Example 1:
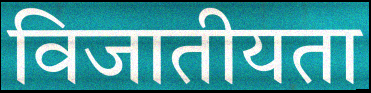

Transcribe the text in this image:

विजातीयता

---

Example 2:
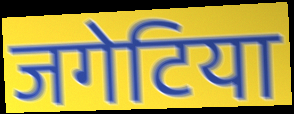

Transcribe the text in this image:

जगेटिया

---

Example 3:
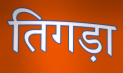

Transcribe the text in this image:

तिगड़ा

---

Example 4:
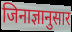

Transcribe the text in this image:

जिनाज्ञानुसार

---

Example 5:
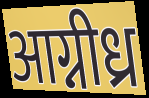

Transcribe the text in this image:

आग्नीध्र